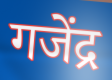
गजेंद्र